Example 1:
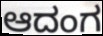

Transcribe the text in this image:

ಆದಂಗ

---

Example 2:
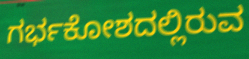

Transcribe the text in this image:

ಗರ್ಭಕೋಶದಲ್ಲಿರುವ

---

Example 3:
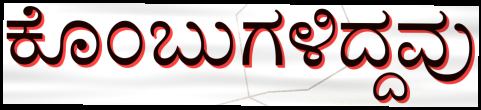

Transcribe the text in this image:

ಕೊಂಬುಗಳಿದ್ದವು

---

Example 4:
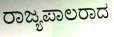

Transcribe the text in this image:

ರಾಜ್ಯಪಾಲರಾದ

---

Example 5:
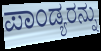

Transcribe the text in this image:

ಪಾಂಡ್ಯರನ್ನು